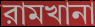
রামখানা